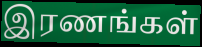
இரணங்கள்